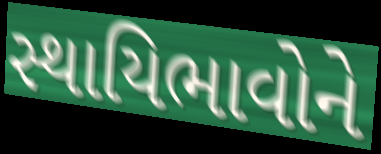
સ્થાયિભાવોને